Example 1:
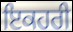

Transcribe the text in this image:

ਇਕਹਰੀ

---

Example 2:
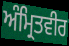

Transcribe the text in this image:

ਅੰਮ੍ਰਿਤਵੀਰ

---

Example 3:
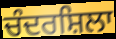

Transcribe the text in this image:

ਚੰਦਰਸ਼ਿਲਾ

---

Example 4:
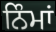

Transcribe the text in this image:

ਨਿੰਮਾਂ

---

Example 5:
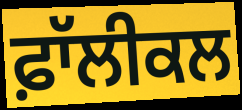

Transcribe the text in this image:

ਫ਼ਾੱਲੀਕਲ